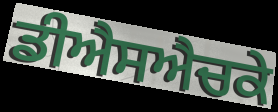
ਡੀਐਸਐਚਕੇ